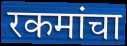
रकमांचा